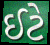
ઈટે